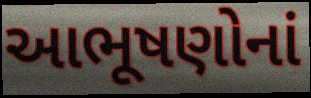
આભૂષણોનાં